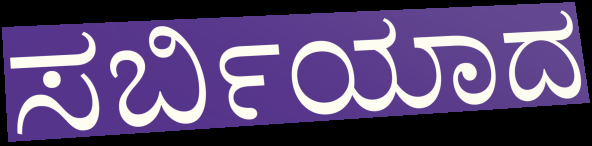
ಸರ್ಬಿಯಾದ